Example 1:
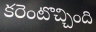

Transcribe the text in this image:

కరెంటొచ్చింది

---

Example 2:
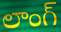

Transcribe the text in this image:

లాంగ్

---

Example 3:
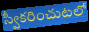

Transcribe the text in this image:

స్వీకరించుటలో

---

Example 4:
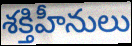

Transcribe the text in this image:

శక్తిహీనులు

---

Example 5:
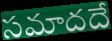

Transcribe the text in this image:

సమాదదే